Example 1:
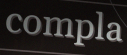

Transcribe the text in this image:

compla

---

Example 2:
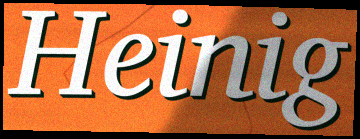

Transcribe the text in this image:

Heinig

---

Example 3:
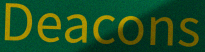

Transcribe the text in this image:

Deacons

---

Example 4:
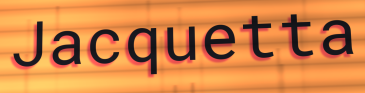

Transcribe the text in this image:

Jacquetta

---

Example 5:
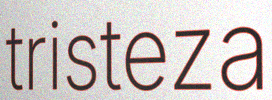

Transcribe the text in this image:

tristeza